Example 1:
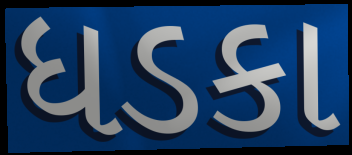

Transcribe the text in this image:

ધડકા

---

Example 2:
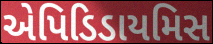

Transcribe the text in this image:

એપિડિડાયમિસ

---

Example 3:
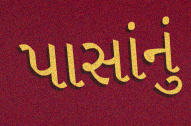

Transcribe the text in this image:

પાસાંનું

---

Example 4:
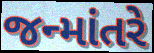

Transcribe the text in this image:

જન્માંતરે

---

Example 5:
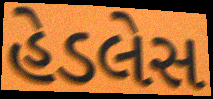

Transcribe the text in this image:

હેડલેસ